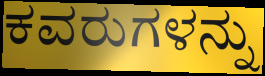
ಕವರುಗಳನ್ನು